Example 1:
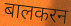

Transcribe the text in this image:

बालकरन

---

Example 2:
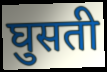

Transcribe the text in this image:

घुसती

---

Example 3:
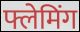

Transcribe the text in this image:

फ्लेमिंग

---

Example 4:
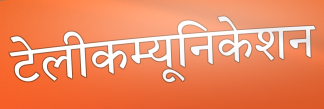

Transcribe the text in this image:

टेलीकम्‍यूनिकेशन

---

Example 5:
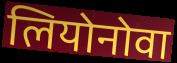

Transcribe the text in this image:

लियोनोवा